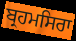
ਬ੍ਰਹਮਸਿਰਾ